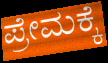
ಪ್ರೇಮಕ್ಕೆ